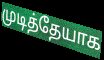
முடித்தேயாக